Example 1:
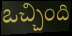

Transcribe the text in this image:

ఒచ్చింది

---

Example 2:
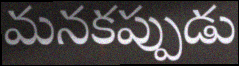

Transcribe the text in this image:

మనకప్పుడు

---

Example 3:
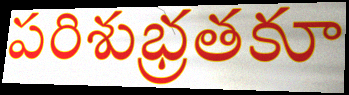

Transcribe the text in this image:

పరిశుభ్రతకూ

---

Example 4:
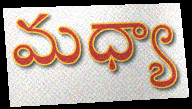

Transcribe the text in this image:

మధ్యా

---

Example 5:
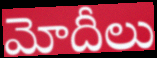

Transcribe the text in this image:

మోదీలు